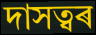
দাসত্বৰ